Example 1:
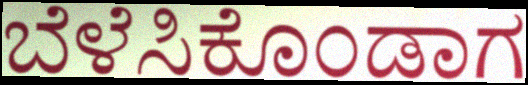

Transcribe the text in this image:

ಬೆಳೆಸಿಕೊಂಡಾಗ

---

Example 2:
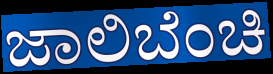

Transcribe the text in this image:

ಜಾಲಿಬೆಂಚಿ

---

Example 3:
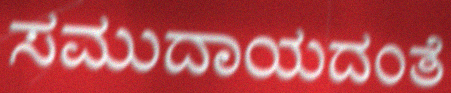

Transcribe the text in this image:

ಸಮುದಾಯದಂತೆ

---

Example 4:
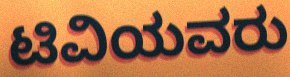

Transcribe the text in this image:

ಟಿವಿಯವರು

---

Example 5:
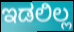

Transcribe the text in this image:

ಇಡಲಿಲ್ಲ